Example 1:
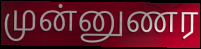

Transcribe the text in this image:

முன்னுணர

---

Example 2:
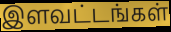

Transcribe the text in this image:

இளவட்டங்கள்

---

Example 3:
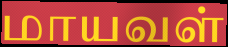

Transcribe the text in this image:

மாயவள்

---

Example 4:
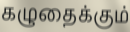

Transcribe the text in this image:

கழுதைக்கும்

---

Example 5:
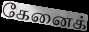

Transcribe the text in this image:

கேனைக்